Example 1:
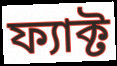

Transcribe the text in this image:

ফ্যাক্ট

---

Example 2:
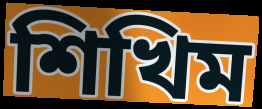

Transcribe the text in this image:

শিখিম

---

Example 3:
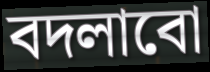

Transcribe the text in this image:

বদলাবো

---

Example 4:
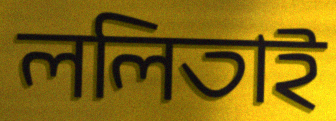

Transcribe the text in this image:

ললিতাই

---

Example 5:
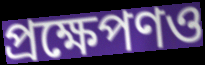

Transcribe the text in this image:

প্রক্ষেপণও